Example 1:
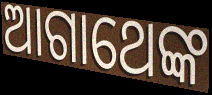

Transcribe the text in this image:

ଆଗାଥେଙ୍କ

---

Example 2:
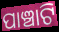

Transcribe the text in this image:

ପାଞ୍ଚାଟି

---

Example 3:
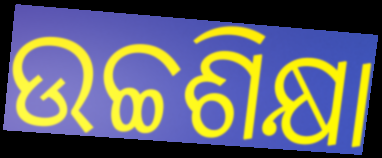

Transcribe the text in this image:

ଉଚ୍ଚଶିକ୍ଷା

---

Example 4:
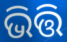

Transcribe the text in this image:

ଭିତ୍ତି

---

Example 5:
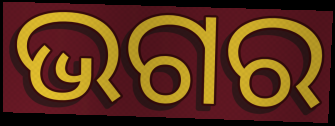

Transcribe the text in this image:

ଭଗର